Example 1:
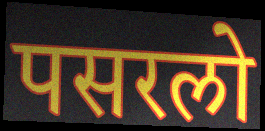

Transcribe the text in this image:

पसरलो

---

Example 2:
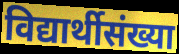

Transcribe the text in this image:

विद्यार्थीसंख्या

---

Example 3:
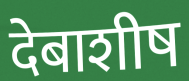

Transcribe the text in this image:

देबाशीष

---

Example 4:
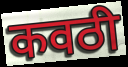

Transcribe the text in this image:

कवठी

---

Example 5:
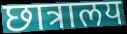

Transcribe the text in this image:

छात्रालय